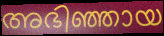
അഭിഞ്ഞായ